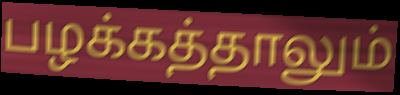
பழக்கத்தாலும்